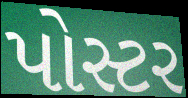
પોસ્ટર